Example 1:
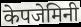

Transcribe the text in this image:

केपजेमिनी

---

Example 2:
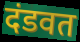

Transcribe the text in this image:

दंडवत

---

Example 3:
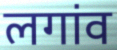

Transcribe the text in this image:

लगांव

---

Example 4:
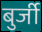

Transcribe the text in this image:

बुर्जी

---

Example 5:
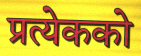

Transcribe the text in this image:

प्रत्येकको